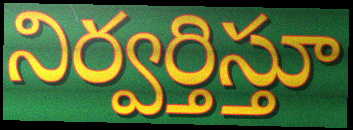
నిర్వర్తిస్తూ